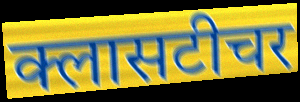
क्लासटीचर